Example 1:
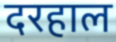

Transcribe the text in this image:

दरहाल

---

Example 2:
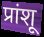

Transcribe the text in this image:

प्रांशू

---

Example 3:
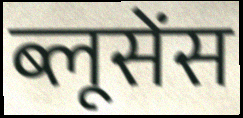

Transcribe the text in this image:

ब्लूसेंस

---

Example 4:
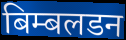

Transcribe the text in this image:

बिम्बलडन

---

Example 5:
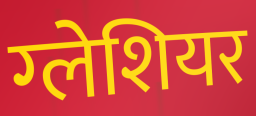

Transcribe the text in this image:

ग्‍लेशियर